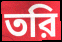
তরি